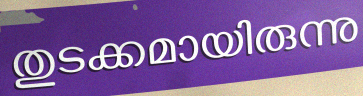
തുടക്കമായിരുന്നു